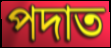
পদাত